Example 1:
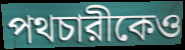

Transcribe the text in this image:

পথচারীকেও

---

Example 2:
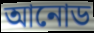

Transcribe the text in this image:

আনোড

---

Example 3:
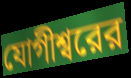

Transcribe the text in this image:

যোগীশ্বরের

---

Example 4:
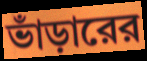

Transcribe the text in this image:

ভাঁড়ারের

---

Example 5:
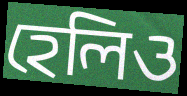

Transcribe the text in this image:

হেলিও